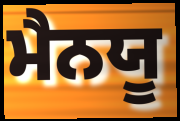
ਮੈਨਯੂ